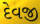
દેવજી